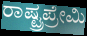
ರಾಷ್ಟ್ರಪ್ರೇಮಿ